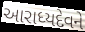
આરાધ્યદેવને